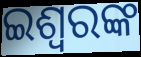
ଇଶ୍ୱରଙ୍କ